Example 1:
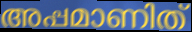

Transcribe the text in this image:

അപ്പമാണിത്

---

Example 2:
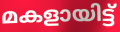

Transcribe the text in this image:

മകളായിട്ട്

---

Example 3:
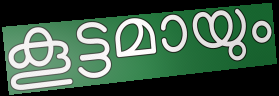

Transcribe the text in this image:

കൂട്ടമായും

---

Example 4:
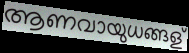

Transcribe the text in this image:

ആണവായുധങ്ങള്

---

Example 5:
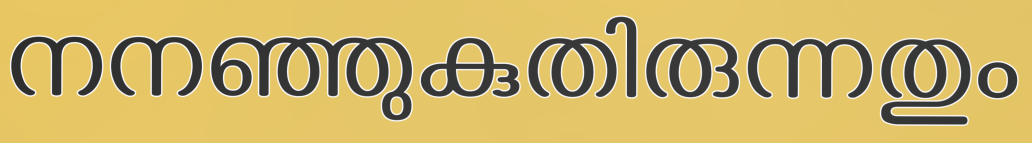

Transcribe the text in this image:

നനഞ്ഞുകുതിരുന്നതും